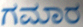
ಗಮಾರ